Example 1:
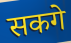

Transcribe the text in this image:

सकगे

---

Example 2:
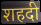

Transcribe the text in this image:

शहदी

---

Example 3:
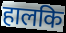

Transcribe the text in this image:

हालकि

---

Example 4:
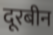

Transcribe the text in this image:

दूरबीन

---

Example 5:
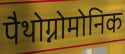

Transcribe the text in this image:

पैथोग्नोमोनिक